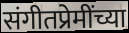
संगीतप्रेमींच्या